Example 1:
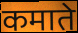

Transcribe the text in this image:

कमाते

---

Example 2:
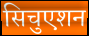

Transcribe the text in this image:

सिचुएशन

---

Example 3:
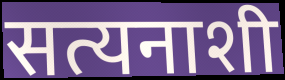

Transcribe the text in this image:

सत्यनाशी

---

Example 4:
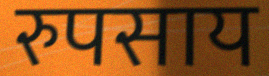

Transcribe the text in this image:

रुपसाय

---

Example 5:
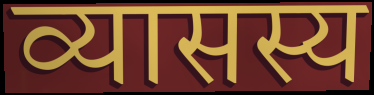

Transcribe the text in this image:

व्यासस्य